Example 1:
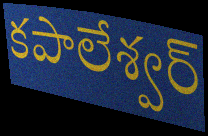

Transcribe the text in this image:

కపాలేశ్వర్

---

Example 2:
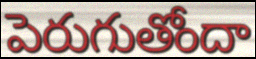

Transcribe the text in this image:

పెరుగుతోందా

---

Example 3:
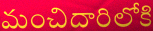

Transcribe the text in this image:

మంచిదారిలోకి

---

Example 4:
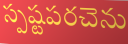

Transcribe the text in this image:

స్పష్టపరచెను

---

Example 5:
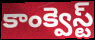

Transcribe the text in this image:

కాంక్వెస్ట్